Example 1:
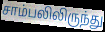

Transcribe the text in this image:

சாம்பலிலிருந்து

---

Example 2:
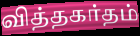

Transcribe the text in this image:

வித்தகர்தம்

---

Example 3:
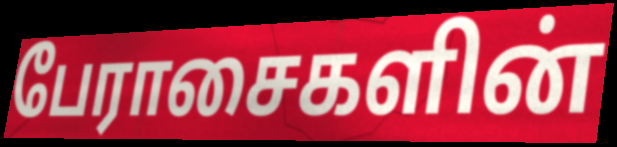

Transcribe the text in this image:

பேராசைகளின்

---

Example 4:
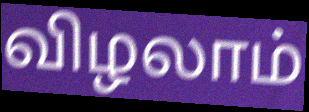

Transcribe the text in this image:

விழலாம்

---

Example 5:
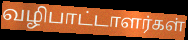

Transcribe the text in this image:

வழிபாட்டாளர்கள்